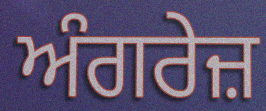
ਅੰਗਰੇਜ਼